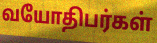
வயோதிபர்கள்